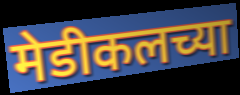
मेडीकलच्या